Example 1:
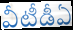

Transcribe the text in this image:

వీటీడీఏ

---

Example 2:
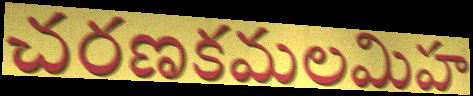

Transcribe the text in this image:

చరణకమలమిహ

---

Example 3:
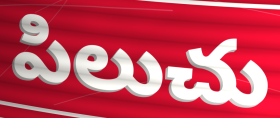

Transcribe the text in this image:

పిలుచు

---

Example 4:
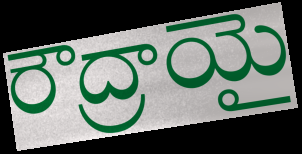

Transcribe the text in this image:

రౌద్రాయై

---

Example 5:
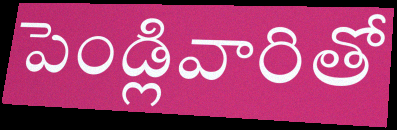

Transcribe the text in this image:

పెండ్లివారితో